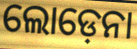
ଲୋଡ଼େନା